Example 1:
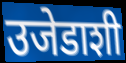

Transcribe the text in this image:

उजेडाशी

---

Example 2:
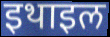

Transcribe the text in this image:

इथाइल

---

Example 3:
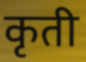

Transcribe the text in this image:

कृती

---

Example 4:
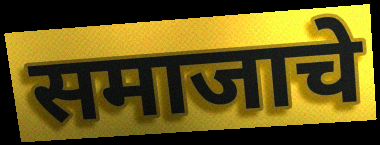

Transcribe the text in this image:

समाजाचे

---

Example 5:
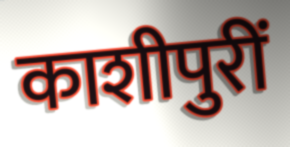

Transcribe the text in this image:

काशीपुरीं